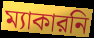
ম্যাকারনি